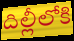
దిల్లీలోకి